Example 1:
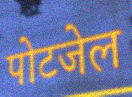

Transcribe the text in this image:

पोटजेल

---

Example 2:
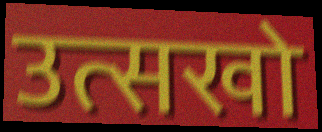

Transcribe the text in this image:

उत्सखो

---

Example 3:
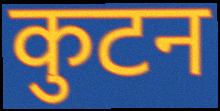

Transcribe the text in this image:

कुटन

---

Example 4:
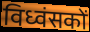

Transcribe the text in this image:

विध्वंसकों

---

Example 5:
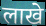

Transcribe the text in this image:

लाखे